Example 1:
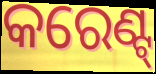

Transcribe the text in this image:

କରେଣ୍ଟ୍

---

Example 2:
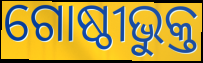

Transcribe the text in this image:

ଗୋଷ୍ଠୀଭୁକ୍ତ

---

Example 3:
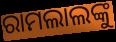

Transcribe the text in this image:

ରାମଲାଲଙ୍କୁ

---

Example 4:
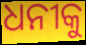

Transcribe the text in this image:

ଧନୀକୁ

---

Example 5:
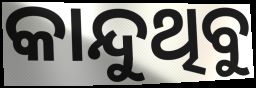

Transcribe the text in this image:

କାନ୍ଦୁଥିବୁ